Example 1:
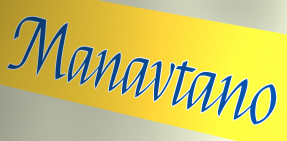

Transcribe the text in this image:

Manavtano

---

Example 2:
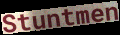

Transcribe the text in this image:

Stuntmen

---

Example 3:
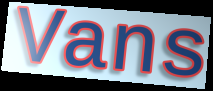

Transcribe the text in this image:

Vans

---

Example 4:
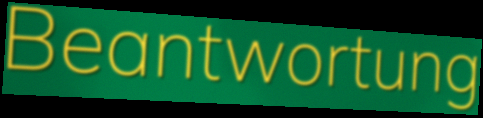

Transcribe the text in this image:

Beantwortung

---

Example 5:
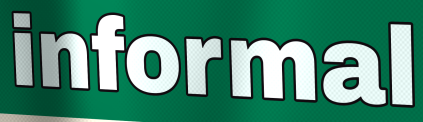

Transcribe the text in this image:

informal